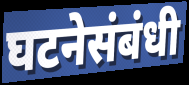
घटनेसंबंधी